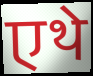
एथे